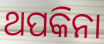
ଥପକିନା